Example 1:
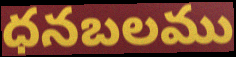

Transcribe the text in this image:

ధనబలము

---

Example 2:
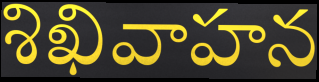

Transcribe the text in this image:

శిఖివాహన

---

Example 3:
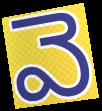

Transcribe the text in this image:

వె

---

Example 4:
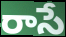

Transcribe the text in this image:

రాసే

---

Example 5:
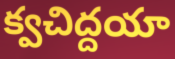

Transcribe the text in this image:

క్వచిద్దయా